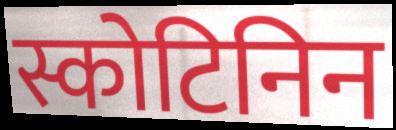
स्कोटिनिन